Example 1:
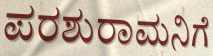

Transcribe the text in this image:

ಪರಶುರಾಮನಿಗೆ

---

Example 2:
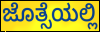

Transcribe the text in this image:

ಜೊತ್ಸೆಯಲ್ಲಿ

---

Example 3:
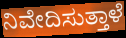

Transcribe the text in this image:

ನಿವೇದಿಸುತ್ತಾಳೆ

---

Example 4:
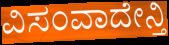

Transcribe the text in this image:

ವಿಸಂವಾದೇನ್ತಿ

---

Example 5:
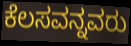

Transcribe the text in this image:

ಕೆಲಸವನ್ನವರು